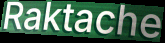
Raktache